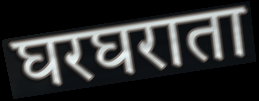
घरघराता